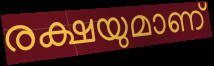
രക്ഷയുമാണ്